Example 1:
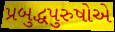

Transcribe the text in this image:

પ્રબુદ્ધપુરુષોએ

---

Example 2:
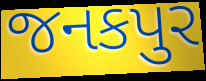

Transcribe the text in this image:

જનકપુર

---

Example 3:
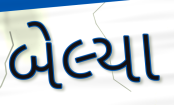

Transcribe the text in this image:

બેલ્યા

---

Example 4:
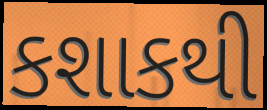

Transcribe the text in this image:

કશાકથી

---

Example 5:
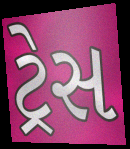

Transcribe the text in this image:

ટ્રેસ